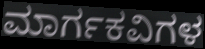
ಮಾರ್ಗಕವಿಗಳ